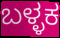
ಬಳ್ಳಕ